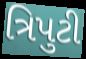
ત્રિપુટી